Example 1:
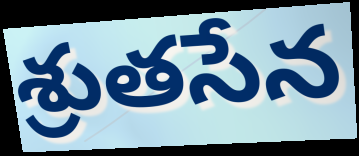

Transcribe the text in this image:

శ్రుతసేన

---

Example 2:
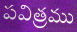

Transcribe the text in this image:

పవిత్రము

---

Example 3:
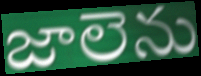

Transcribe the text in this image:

జాలెను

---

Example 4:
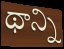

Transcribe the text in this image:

థాన్ని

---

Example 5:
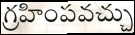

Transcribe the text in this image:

గ్రహింపవచ్చు